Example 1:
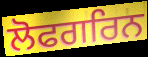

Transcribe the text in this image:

ਲੋਫਗਰਿਨ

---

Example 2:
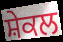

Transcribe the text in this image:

ਸ਼ੇਕਲ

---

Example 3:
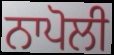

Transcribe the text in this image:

ਨਾਪੋਲੀ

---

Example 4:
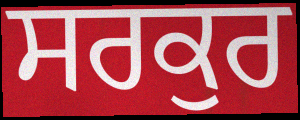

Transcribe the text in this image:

ਸਰਕੁਰ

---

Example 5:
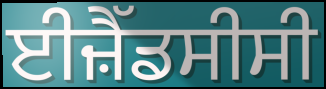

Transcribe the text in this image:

ਈਜ਼ੈੱਡਸੀਸੀ